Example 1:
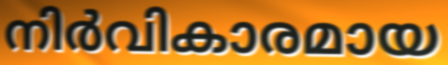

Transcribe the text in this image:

നിർവികാരമായ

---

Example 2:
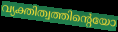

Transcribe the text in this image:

വ്യക്തിത്വത്തിന്റെയോ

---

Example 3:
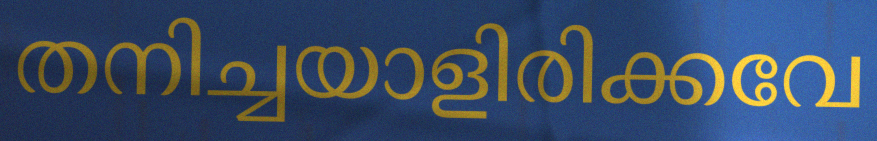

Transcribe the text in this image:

തനിച്ചയാളിരിക്കവേ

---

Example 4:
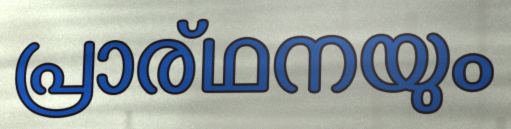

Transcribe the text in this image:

പ്രാര്ഥനയും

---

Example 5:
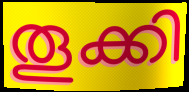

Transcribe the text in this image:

തൂക്കി